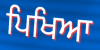
ਪਿਖਿਆ